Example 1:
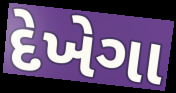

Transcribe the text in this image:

દેખેગા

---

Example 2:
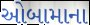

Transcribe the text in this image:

ઓબામાના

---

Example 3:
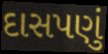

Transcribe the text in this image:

દાસપણું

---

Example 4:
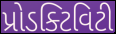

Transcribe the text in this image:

પ્રોડક્ટિવિટી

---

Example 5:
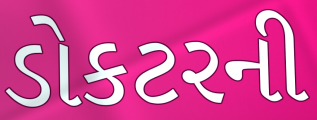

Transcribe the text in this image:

ડોકટરની